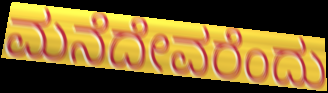
ಮನೆದೇವರೆಂದು